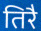
तिरै